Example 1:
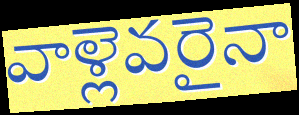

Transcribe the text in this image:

వాళ్లెవరైనా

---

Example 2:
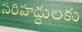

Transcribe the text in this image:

సరిహద్దులకు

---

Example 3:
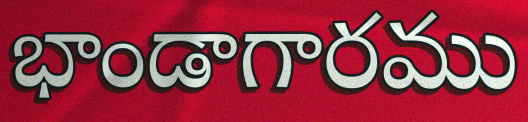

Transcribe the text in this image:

భాండాగారము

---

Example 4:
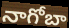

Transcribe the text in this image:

నాగోబా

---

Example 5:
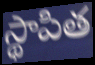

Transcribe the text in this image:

స్థాపిత